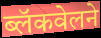
ब्लॅकवेलने